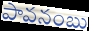
పావనంబు